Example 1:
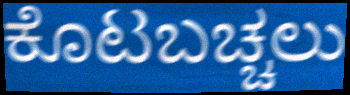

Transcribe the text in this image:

ಕೊಟಬಚ್ಚಲು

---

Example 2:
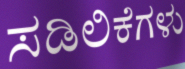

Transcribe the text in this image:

ಸಡಿಲಿಕೆಗಳು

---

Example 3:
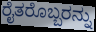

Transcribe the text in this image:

ರೈತರೊಬ್ಬರನ್ನು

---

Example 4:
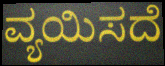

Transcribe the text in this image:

ವ್ಯಯಿಸದೆ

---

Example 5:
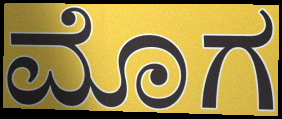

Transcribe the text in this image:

ಮೊಗ